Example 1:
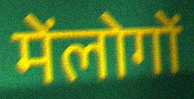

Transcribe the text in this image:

मेंलोगों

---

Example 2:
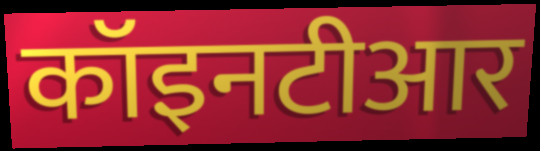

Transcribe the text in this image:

कॉइनटीआर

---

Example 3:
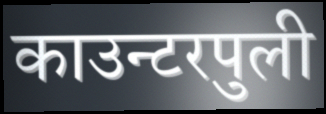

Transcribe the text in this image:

काउन्टरपुली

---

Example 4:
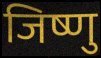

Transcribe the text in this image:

जिष्णु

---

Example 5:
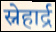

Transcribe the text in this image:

स्नेहार्द्र